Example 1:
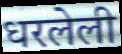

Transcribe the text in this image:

धरलेली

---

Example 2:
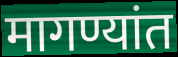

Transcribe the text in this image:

मागण्यांत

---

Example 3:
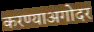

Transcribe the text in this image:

करण्याअगोदर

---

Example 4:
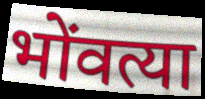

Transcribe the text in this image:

भोंवत्या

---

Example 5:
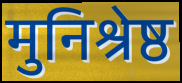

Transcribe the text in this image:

मुनिश्रेष्ठ